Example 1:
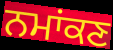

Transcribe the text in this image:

ਨਮਾਂਕਣ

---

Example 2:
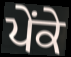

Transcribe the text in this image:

ਪੇਂਕੇ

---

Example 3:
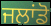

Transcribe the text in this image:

ਜਲਾਂਡੋ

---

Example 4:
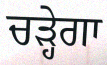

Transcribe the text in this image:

ਚੜ੍ਹੇਗਾ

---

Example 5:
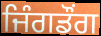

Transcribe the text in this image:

ਜਿੰਗਡੌਂਗ